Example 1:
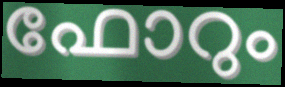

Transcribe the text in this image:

ഫോറും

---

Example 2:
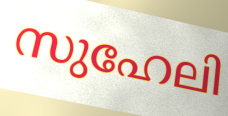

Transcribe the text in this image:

സുഹേലി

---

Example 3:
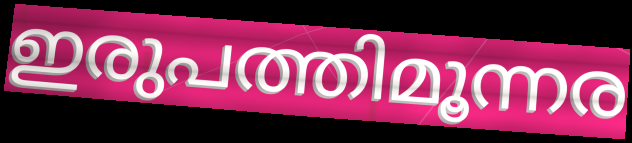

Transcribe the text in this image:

ഇരുപത്തിമൂന്നര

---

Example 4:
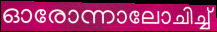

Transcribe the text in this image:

ഓരോന്നാലോചിച്ച്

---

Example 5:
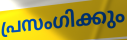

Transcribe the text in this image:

പ്രസംഗിക്കും